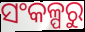
ସଂକଳ୍ପରୁ